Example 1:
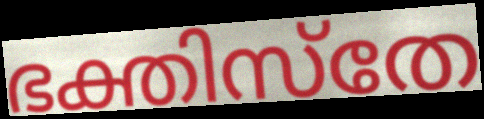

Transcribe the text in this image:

ഭക്തിസ്തേ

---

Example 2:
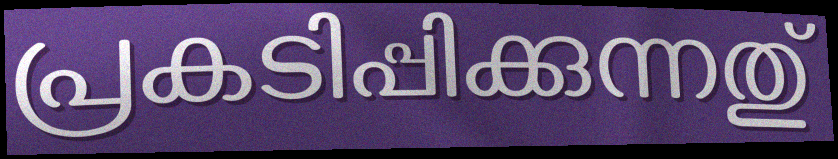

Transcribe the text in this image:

പ്രകടിപ്പിക്കുന്നതു്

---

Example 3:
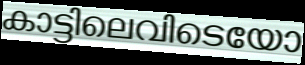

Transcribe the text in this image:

കാട്ടിലെവിടെയോ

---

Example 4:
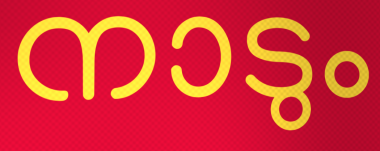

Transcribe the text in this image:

നാടും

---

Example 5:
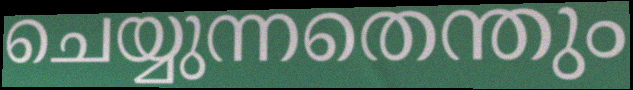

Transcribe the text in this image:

ചെയ്യുന്നതെന്തും